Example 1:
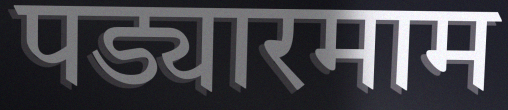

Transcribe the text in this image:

पड्यारमाम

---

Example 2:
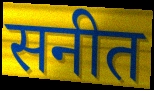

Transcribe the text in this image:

सनीत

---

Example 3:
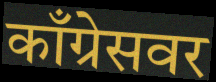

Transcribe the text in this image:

काँग्रेसवर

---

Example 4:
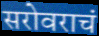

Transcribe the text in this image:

सरोवराचं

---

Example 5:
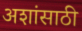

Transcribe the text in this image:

अशांसाठी